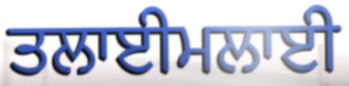
ਤਲਾਈਮਲਾਈ